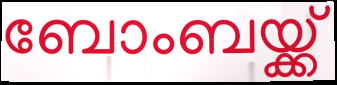
ബോംബയ്ക്ക്